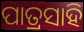
ପାତ୍ରସାହି